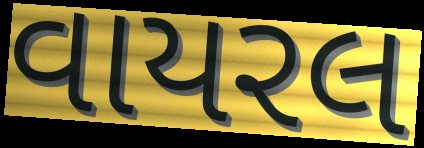
વાયરલ